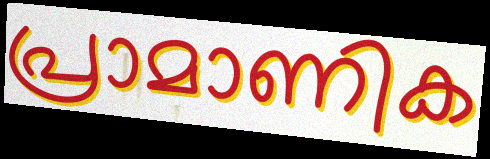
പ്രാമാണിക